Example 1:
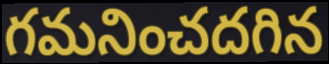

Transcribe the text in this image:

గమనించదగిన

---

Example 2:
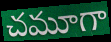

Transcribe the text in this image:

చమూగా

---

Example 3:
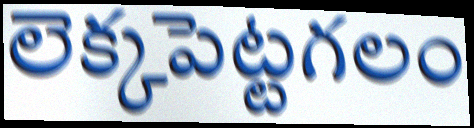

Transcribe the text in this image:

లెక్కపెట్టగలం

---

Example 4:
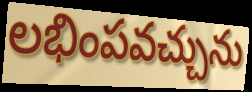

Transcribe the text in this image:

లభింపవచ్చును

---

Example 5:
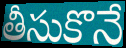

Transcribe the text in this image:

తీసుకొనే